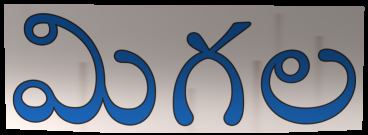
మిగల